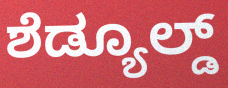
ಶೆಡ್ಯೂಲ್ಡ್